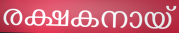
രക്ഷകനായ്